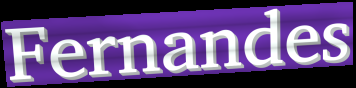
Fernandes